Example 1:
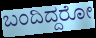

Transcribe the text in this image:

ಬಂದಿದ್ದರೋ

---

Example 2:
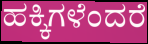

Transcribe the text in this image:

ಹಕ್ಕಿಗಳೆಂದರೆ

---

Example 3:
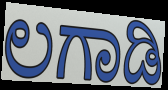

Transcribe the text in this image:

ಲಗಾಡಿ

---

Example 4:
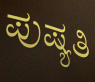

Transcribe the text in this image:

ಪುಷ್ಯತಿ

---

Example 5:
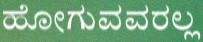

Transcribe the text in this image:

ಹೋಗುವವರಲ್ಲ